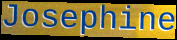
Josephine